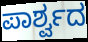
ಪಾರ್ಶ್ವದ